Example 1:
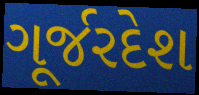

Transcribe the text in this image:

ગૂર્જરદેશ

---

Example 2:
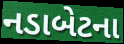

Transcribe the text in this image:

નડાબેટના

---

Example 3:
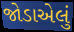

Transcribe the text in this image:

જોડાએલું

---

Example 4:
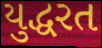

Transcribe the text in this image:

યુદ્ધરત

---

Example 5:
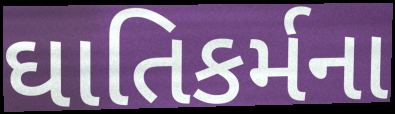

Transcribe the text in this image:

ઘાતિકર્મના